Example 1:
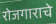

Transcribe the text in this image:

रोजगाराचे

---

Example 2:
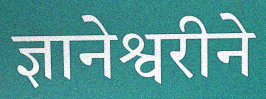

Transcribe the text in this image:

ज्ञानेश्वरीने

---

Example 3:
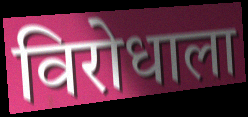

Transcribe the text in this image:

विरोधाला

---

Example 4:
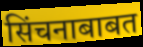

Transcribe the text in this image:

सिंचनाबाबत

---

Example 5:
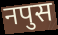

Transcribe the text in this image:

नपुस